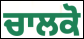
ਚਾਲਕੋ